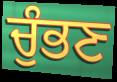
ਚੁੰਭਣ